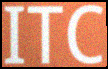
ITC